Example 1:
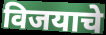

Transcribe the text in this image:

विजयाचे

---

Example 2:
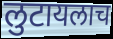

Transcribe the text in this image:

लुटायलाच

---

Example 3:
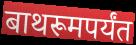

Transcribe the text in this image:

बाथरूमपर्यंत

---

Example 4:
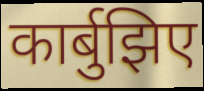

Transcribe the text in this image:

कार्बुझिए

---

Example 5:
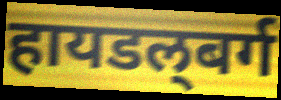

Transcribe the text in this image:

हायडल्‌बर्ग